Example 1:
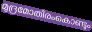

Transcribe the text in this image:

മുദ്രമോതിരംകൊണ്ടും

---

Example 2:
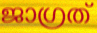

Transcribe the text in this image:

ജാഗ്രത്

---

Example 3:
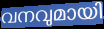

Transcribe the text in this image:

വനവുമായി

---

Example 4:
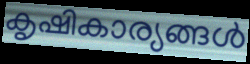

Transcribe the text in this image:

കൃഷികാര്യങ്ങൾ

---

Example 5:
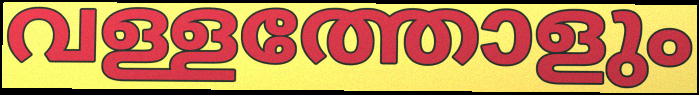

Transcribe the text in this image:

വള്ളത്തോളും